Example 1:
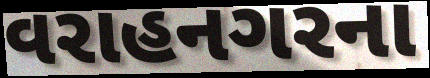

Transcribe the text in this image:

વરાહનગરના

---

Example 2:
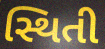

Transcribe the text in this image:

સ્થિતી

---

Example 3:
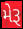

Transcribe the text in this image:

મેરૂ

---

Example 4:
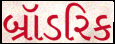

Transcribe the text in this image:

બ્રૉડરિક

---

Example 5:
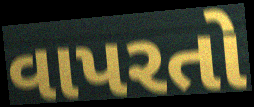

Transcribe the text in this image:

વાપરતો